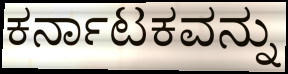
ಕರ್ನಾಟಕವನ್ನು